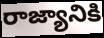
రాజ్యానికి